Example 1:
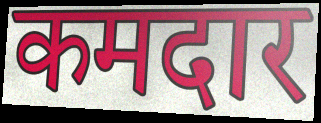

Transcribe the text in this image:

कमदार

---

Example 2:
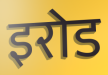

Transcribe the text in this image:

इरोड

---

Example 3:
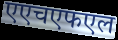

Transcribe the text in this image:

एएचएफएल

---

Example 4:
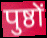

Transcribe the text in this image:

पुष्ठों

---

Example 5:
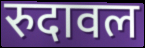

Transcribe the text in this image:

रुदावल